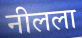
नीलला